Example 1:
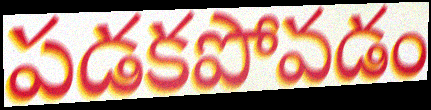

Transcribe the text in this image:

పడకపోవడం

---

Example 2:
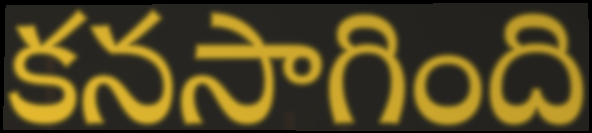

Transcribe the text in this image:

కనసాగింది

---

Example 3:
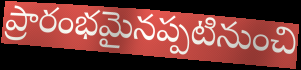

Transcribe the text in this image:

ప్రారంభమైనప్పటినుంచి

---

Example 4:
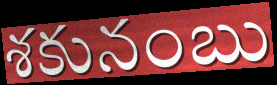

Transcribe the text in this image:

శకునంబు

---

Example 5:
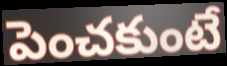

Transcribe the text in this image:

పెంచకుంటే